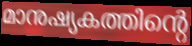
മാനുഷ്യകത്തിന്റെ